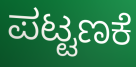
ಪಟ್ಟಣಕೆ